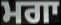
ਮਗਾ